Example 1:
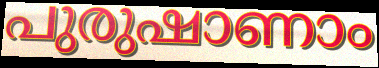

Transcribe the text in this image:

പുരുഷാണാം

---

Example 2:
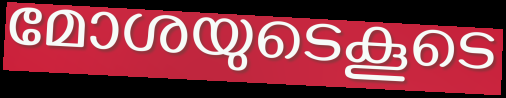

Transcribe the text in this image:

മോശയുടെകൂടെ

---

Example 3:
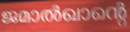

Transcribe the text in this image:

ജമാൽഖാന്റെ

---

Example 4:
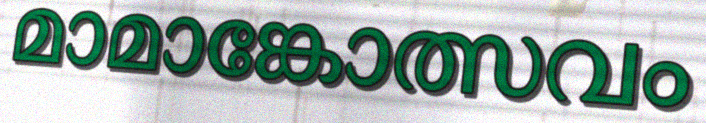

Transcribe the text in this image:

മാമാങ്കോത്സവം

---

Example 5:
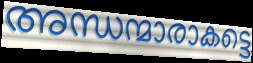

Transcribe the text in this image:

അന്ധന്മാരാകട്ടെ